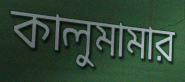
কালুমামার